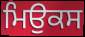
ਮਿਉਕਸ